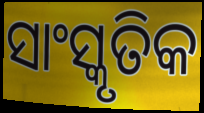
ସାଂସ୍କୃତିକ